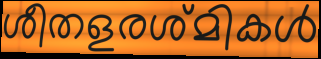
ശീതളരശ്മികൾ